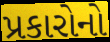
પ્રકારોનો